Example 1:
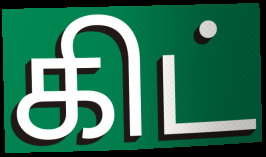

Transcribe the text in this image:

கிட்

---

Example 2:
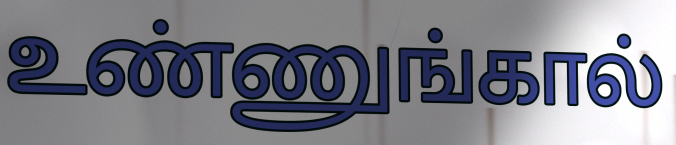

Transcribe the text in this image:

உண்ணுங்கால்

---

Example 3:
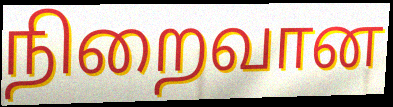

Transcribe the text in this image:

நிறைவான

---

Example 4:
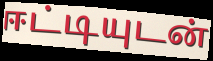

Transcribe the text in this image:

ஈட்டியுடன்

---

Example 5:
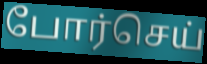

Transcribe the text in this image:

போர்செய்